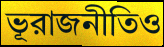
ভূরাজনীতিও